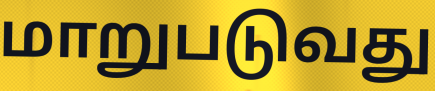
மாறுபடுவது